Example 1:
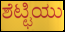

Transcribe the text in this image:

ಶೆಟ್ಟಿಯು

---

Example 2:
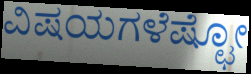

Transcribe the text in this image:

ವಿಷಯಗಳೆಷ್ಟೋ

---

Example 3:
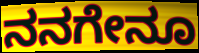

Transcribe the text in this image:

ನನಗೇನೂ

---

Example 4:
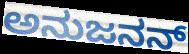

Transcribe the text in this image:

ಅನುಜನನ್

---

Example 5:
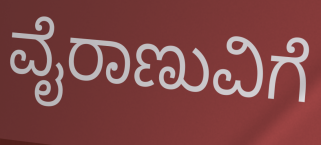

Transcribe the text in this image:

ವೈರಾಣುವಿಗೆ